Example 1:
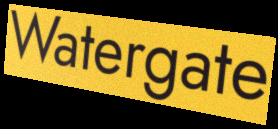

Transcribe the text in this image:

Watergate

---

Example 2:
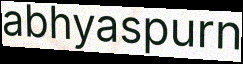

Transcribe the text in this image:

abhyaspurn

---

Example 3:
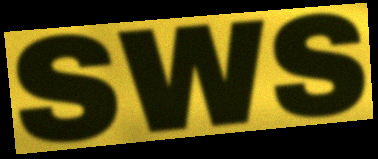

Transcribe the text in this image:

SWS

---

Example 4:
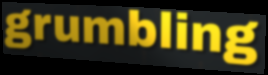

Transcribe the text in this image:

grumbling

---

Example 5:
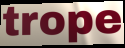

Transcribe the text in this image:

trope